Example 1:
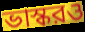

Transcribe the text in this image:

ভাস্করও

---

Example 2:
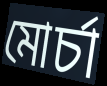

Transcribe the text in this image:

মোর্চা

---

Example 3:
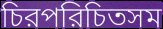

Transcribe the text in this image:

চিরপরিচিতসম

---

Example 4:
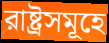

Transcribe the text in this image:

রাষ্ট্রসমূহে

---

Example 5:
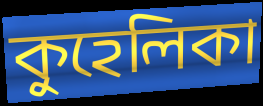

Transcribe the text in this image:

কুহেলিকা